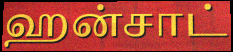
ஹன்சாட்